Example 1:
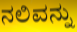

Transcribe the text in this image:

ನಲಿವನ್ನು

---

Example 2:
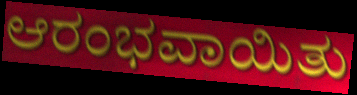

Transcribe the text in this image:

ಆರಂಭವಾಯಿತು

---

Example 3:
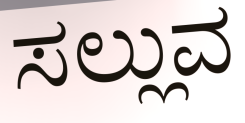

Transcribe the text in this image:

ಸಲ್ಲುವ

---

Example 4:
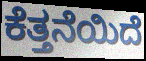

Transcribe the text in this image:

ಕೆತ್ತನೆಯಿದೆ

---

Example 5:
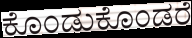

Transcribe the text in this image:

ಕೊಂಡುಕೊಂಡರೆ